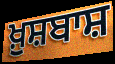
ਖ਼ੁਸ਼ਬਾਸ਼